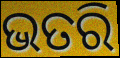
ଭତରି